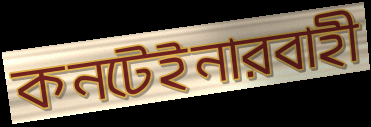
কনটেইনারবাহী